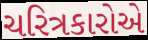
ચરિત્રકારોએ